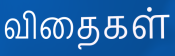
விதைகள்